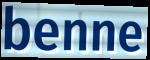
benne